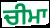
ਚੀਮਾ